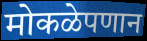
मोकळेपणान